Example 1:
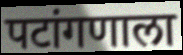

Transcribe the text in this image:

पटांगणाला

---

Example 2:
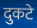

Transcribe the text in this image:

दुकटे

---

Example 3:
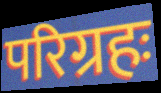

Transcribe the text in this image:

परिग्रहः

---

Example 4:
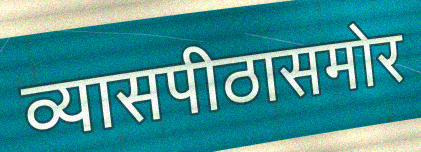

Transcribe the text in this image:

व्यासपीठासमोर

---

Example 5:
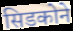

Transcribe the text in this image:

सिडकोने